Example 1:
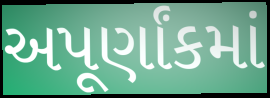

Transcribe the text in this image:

અપૂર્ણાંકમાં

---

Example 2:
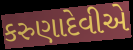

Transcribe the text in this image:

કરુણાદેવીએ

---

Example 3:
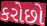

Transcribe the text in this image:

કરોછો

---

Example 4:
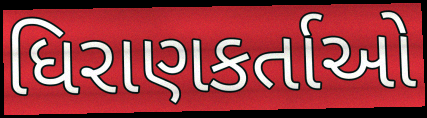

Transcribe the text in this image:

ધિરાણકર્તાઓ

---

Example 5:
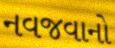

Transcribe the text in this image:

નવજવાનો